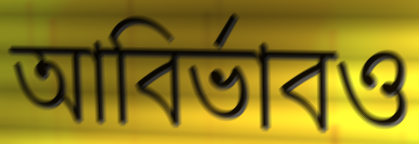
আবির্ভাবও